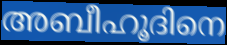
അബീഹൂദിനെ